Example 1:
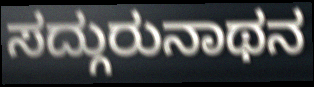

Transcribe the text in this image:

ಸದ್ಗುರುನಾಥನ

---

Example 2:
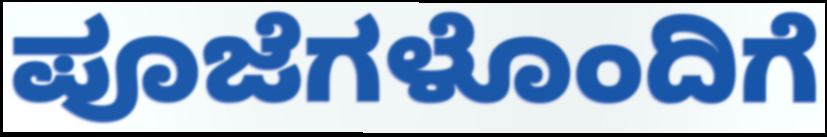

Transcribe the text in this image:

ಪೂಜೆಗಳೊಂದಿಗೆ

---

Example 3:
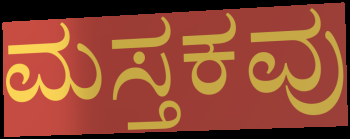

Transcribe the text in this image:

ಮಸ್ತಕವು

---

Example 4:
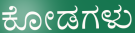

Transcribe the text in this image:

ಕೋಡಗಳು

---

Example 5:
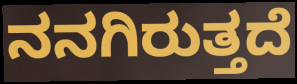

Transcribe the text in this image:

ನನಗಿರುತ್ತದೆ